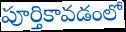
పూర్తికావడంలో